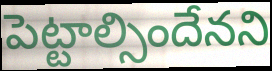
పెట్టాల్సిందేనని